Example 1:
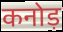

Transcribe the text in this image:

कनोड़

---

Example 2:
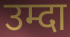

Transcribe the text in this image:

उम्दा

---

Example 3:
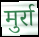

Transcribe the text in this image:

मुर्रा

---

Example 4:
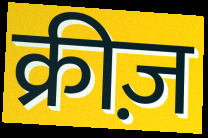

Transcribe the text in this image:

क्रीज़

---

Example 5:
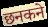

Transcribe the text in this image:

छनकने